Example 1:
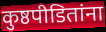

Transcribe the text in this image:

कुष्ठपीडितांना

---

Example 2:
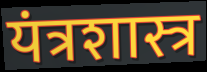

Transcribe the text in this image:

यंत्रशास्त्र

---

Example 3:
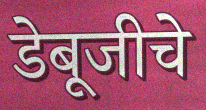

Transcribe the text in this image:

डेबूजीचे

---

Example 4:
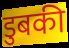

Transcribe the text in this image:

डुबकी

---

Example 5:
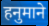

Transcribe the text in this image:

हनुमाने